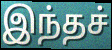
இந்தச்